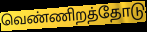
வெண்ணிறத்தோடு